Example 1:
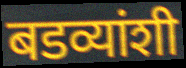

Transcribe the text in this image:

बडव्यांशी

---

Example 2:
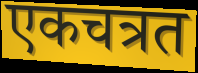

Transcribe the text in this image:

एकचत्रत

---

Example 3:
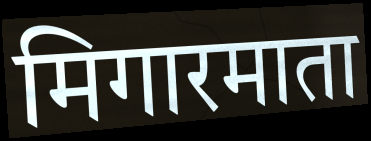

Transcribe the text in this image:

मिगारमाता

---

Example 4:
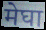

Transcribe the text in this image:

मेघा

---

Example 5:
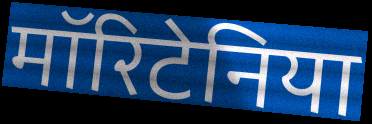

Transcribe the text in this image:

मॉरिटेनिया